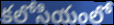
కలోసియంలో